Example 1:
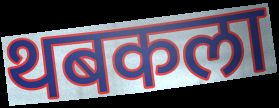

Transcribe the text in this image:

थबकला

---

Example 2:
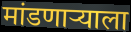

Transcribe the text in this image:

मांडणाऱ्याला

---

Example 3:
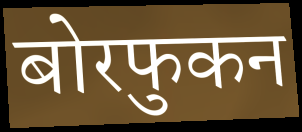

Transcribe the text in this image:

बोरफुकन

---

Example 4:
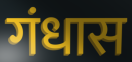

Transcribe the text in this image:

गंधास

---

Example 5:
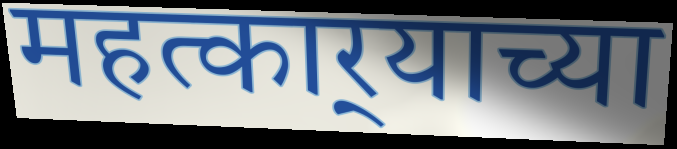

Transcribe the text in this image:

महत्कार्याच्या